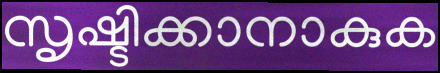
സൃഷ്ടിക്കാനാകുക